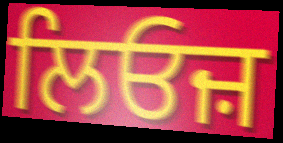
ਲਿਓਜ਼